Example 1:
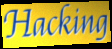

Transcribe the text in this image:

Hacking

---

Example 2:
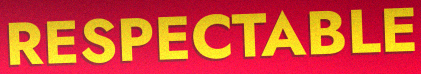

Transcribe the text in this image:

RESPECTABLE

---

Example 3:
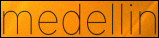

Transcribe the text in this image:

medellin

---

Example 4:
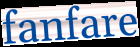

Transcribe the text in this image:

fanfare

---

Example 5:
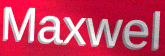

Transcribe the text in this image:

Maxwel